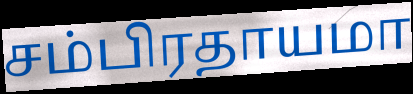
சம்பிரதாயமா